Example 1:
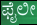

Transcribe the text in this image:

ಫೈಲೀ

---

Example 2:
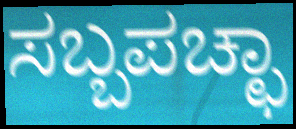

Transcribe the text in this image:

ಸಬ್ಬಪಚ್ಛಾ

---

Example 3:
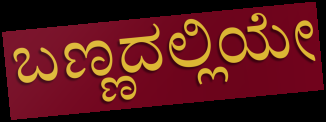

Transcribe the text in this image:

ಬಣ್ಣದಲ್ಲಿಯೇ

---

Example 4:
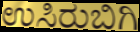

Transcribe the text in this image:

ಉಸಿರುಬಿಗಿ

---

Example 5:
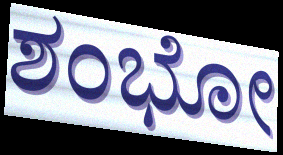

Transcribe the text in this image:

ಶಂಭೋ